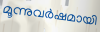
മൂന്നുവർഷമായി